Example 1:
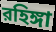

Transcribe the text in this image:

রহিঙ্গা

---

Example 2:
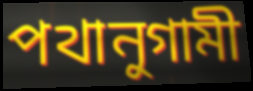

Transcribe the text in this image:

পথানুগামী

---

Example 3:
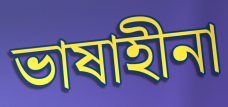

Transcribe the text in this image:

ভাষাহীনা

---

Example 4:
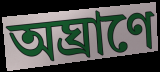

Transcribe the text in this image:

অঘ্রাণে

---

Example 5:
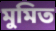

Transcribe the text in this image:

মুমিত